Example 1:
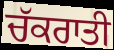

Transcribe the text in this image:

ਚੱਕਰਾਤੀ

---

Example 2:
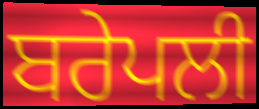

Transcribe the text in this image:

ਬਰੇਪਲੀ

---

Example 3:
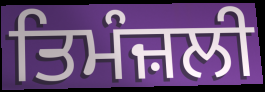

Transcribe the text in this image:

ਤਿਮੰਜ਼ਲੀ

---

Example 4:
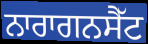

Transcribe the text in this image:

ਨਾਰਾਗਨਸੈੱਟ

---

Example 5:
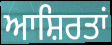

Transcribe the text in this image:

ਆਸ਼ਿਰਤਾਂ